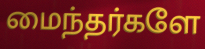
மைந்தர்களே